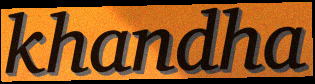
khandha